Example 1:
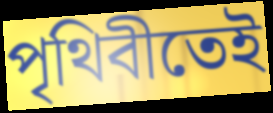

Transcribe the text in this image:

পৃথিবীতেই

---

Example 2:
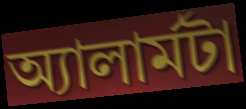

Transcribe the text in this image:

অ্যালার্মটা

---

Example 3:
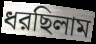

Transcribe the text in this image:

ধরছিলাম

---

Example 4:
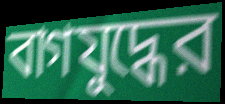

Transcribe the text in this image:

বাগযুদ্ধের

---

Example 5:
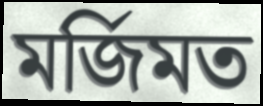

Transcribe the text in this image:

মর্জিমত